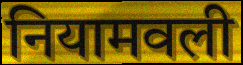
नियामवली